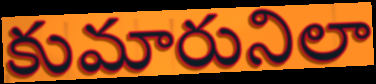
కుమారునిలా